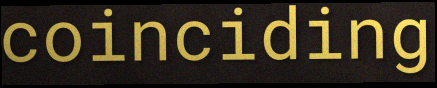
coinciding